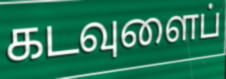
கடவுளைப்